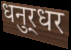
धनुर्धर